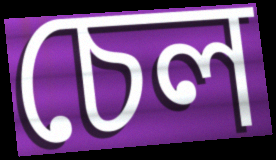
চেল